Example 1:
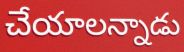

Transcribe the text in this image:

చేయాలన్నాడు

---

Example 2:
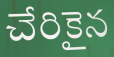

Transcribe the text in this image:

చేరికైన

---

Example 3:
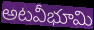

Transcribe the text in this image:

అటవీభూమి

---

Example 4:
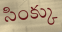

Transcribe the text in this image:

సింక్కు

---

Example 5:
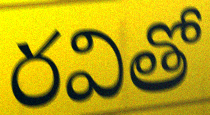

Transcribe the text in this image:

రవితో